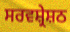
ਸਰਵਸ਼੍ਰੇਸ਼ਠ